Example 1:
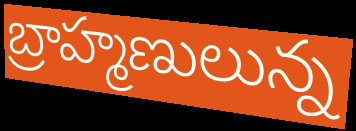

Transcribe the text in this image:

బ్రాహ్మణులున్న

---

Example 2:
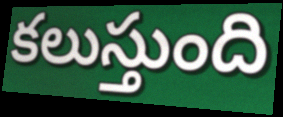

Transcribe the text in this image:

కలుస్తుంది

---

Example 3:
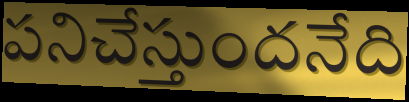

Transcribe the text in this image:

పనిచేస్తుందనేది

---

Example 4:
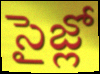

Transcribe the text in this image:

సైజ్లో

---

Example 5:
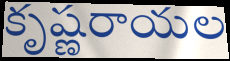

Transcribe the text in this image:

కృష్ణరాయల